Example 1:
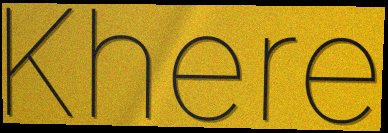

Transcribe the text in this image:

Khere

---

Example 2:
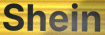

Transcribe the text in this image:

Shein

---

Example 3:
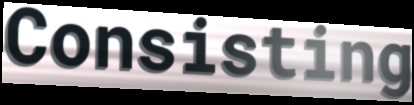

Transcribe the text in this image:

Consisting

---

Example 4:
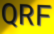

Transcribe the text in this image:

QRF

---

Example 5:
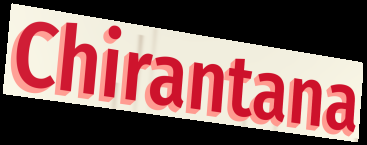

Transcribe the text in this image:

Chirantana